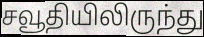
சவூதியிலிருந்து